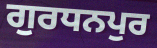
ਗੁਰਧਨਪੁਰ